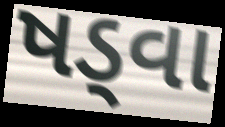
ષડ્વા